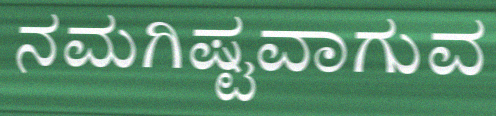
ನಮಗಿಷ್ಟವಾಗುವ